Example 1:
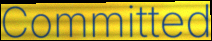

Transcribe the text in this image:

Committed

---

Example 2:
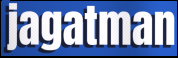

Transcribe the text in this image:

jagatman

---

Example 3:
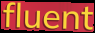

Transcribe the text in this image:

fluent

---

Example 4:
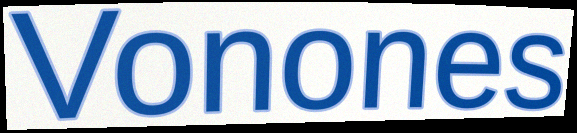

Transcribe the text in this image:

Vonones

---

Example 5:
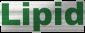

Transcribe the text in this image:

Lipid